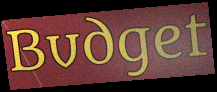
Budget